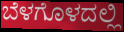
ಬೆಳಗೊಳದಲ್ಲಿ